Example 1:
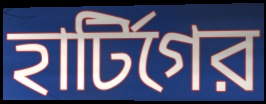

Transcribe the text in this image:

হার্টিগের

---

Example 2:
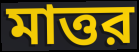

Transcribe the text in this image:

মাত্তর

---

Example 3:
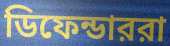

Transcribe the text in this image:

ডিফেন্ডাররা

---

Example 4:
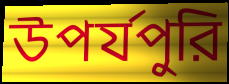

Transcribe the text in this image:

উপর্যপুরি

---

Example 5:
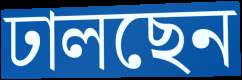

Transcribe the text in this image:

ঢালছেন